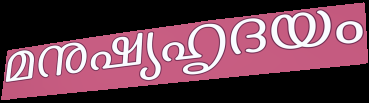
മനുഷ്യഹൃദയം